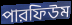
পারফিউম